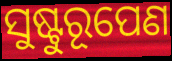
ସୁଷ୍ଟୁରୂପେଣ